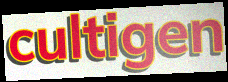
cultigen